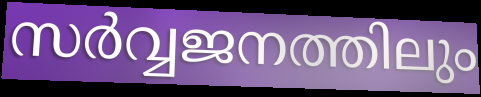
സർവ്വജനത്തിലും